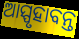
ଆସ୍ପୃହାବନ୍ତ